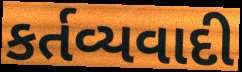
કર્તવ્યવાદી